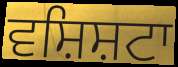
ਵਸ਼ਿਸ਼ਟਾ